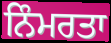
ਨਿੰਮਰਤਾ